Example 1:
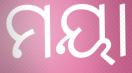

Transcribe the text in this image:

ମୟା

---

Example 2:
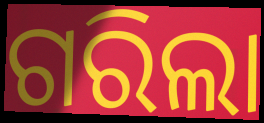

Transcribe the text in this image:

ଗରିଲା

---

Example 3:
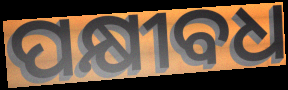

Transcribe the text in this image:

ପକ୍ଷୀବଧ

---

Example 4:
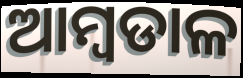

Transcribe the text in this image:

ଆମ୍ବଡାଳ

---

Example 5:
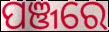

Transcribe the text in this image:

ପଞ୍ଜରେ